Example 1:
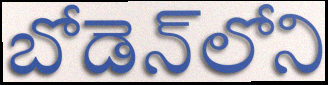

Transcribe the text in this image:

బోడెన్‌లోని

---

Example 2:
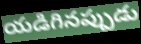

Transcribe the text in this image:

యడిగినప్పుడు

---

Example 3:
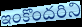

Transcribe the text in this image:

ఇంకొందరిని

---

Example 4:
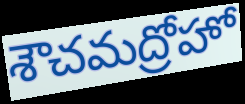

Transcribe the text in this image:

శౌచమద్రోహో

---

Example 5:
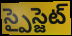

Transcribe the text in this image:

స్పైస్జెట్